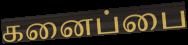
கனைப்பை